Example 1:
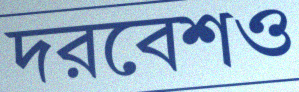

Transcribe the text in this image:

দরবেশও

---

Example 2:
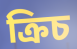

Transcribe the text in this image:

ক্রিচ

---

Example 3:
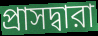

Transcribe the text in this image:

প্রাসদ্বারা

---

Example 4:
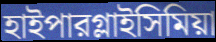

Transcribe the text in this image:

হাইপারগ্লাইসিমিয়া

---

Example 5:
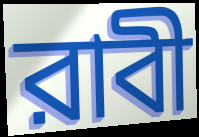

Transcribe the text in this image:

রাবী